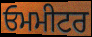
ਓਮਮੀਟਰ